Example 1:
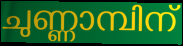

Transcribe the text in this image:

ചുണ്ണാമ്പിന്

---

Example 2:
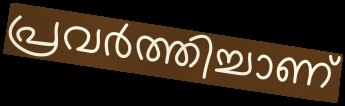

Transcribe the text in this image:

പ്രവർത്തിച്ചാണ്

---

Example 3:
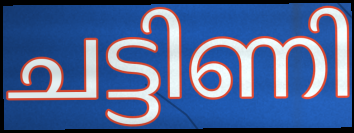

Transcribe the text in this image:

ചട്ടിണി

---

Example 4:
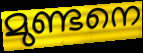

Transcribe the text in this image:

മുണ്ടനെ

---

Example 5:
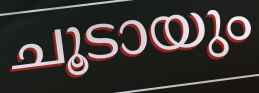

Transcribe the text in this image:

ചൂടായും